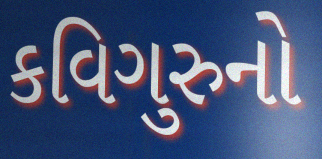
કવિગુરુનો